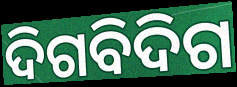
ଦିଗବିଦିଗ